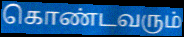
கொண்டவரும்